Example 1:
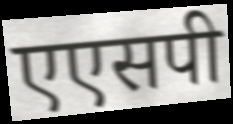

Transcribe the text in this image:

एएसपी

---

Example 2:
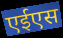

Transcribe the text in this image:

एईएस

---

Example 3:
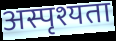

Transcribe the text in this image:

अस्पृश्यता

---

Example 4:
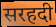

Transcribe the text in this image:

सरहदी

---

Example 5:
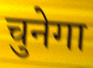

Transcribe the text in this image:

चुनेगा